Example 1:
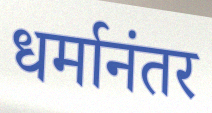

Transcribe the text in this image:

धर्मानंतर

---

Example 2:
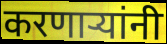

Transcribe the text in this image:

करणार्‍यांनी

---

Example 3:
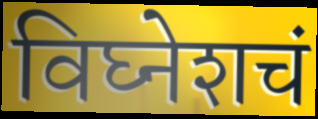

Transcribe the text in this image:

विघ्नेशचं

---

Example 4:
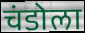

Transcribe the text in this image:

चंडोला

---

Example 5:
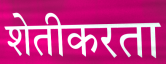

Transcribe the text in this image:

शेतीकरता